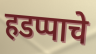
हडप्पाचे